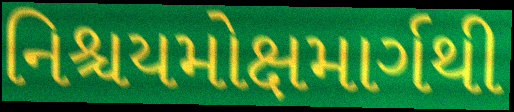
નિશ્ચયમોક્ષમાર્ગથી